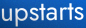
upstarts